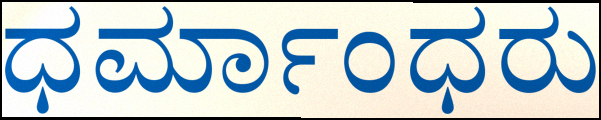
ಧರ್ಮಾಂಧರು